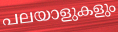
പലയാളുകളും